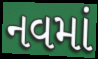
નવમાં